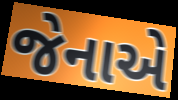
જેનાએ